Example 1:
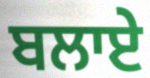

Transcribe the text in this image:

ਬਲਾਏ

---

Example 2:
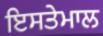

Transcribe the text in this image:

ਇਸਤੇਮਾਲ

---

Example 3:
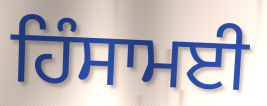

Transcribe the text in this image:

ਹਿੰਸਾਮਈ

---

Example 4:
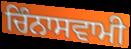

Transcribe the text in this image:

ਚਿੰਨਾਸਵਾਮੀ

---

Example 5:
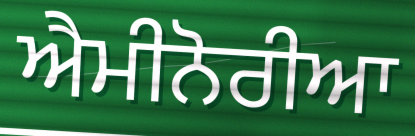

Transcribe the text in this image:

ਐਮੀਨੋਰੀਆ